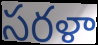
సరళా